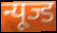
न्यूज्ड